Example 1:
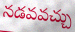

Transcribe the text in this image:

నడవవచ్చు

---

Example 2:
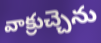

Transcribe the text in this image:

వాక్రుచ్చెను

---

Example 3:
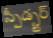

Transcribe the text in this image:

స్పీడ్స్టర్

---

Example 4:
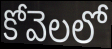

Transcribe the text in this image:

కోవెలలో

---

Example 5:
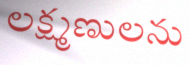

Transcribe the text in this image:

లక్ష్మణులను